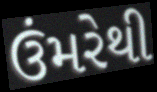
ઉંમરેથી